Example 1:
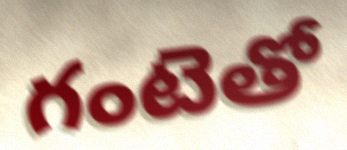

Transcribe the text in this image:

గంటెతో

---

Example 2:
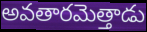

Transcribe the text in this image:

అవతారమెత్తాడు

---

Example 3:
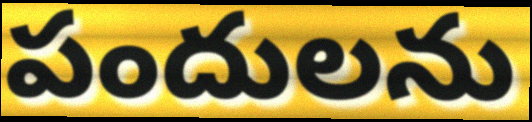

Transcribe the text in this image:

పందులను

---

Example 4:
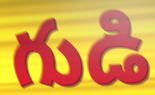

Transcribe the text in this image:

గుడి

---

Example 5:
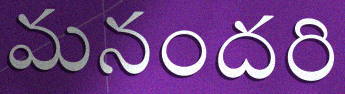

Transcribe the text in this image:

మనందరి